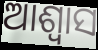
ଆଶ୍ୱାସ